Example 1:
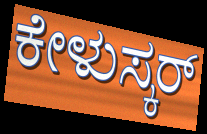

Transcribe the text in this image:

ಕೇಳುಸ್ಕರ್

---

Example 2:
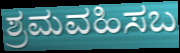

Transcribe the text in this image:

ಶ್ರಮವಹಿಸಬ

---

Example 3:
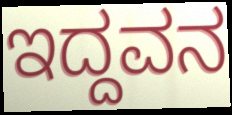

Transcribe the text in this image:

ಇದ್ದವನ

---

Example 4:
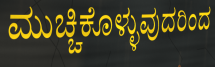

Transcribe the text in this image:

ಮುಚ್ಚಿಕೊಳ್ಳುವುದರಿಂದ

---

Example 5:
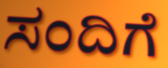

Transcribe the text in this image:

ಸಂದಿಗೆ